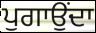
ਪੁਗਾਉਂਦਾ